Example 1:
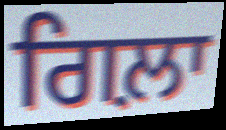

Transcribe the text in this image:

ਗਿਲ਼ਾ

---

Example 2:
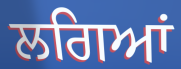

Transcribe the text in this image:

ਲਗਿਆਂ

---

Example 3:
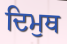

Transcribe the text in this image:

ਦਿਮੁਥ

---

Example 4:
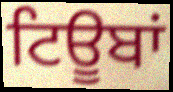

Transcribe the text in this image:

ਟਿਊਬਾਂ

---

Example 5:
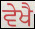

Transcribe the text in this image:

ਵੇਖੈ